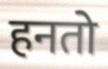
हनतो